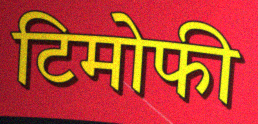
टिमोफी